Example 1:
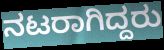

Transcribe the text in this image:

ನಟರಾಗಿದ್ದರು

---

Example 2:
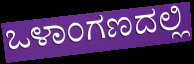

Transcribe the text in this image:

ಒಳಾಂಗಣದಲ್ಲಿ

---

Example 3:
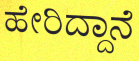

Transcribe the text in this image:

ಹೇರಿದ್ದಾನೆ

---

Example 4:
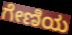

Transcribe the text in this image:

ಗೇಣಿಯ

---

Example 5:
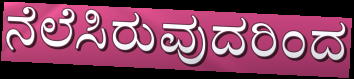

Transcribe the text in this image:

ನೆಲೆಸಿರುವುದರಿಂದ